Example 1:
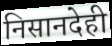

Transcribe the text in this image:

निसानदेही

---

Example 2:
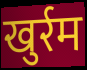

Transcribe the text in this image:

खुर्रम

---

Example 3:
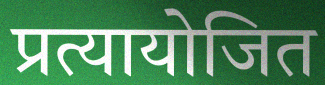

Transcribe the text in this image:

प्रत्यायोजित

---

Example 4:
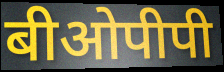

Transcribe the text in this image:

बीओपीपी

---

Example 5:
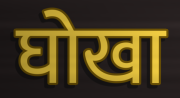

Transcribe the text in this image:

घोखा